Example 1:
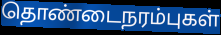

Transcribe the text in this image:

தொண்டைநரம்புகள்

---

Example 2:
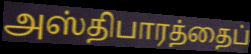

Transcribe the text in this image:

அஸ்திபாரத்தைப்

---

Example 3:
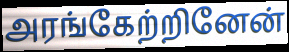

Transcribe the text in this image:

அரங்கேற்றினேன்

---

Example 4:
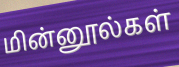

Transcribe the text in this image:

மின்னூல்கள்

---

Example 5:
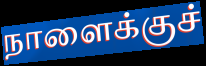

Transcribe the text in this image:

நாளைக்குச்